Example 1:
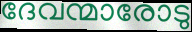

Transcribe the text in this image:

ദേവന്മാരോടു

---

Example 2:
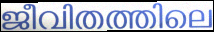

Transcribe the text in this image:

ജീവിതത്തിലെ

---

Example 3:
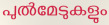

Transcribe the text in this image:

പുൽമേടുകളും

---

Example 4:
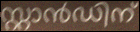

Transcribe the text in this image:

സ്റ്റാൻഡിന്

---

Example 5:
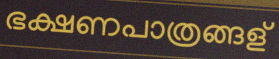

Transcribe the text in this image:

ഭക്ഷണപാത്രങ്ങള്